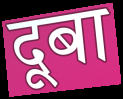
दूबा